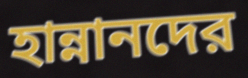
হান্নানদের